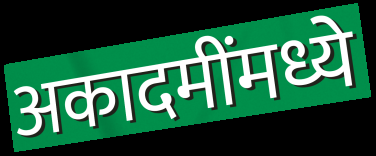
अकादमींमध्ये